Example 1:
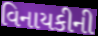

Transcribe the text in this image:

વિનાયકીની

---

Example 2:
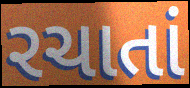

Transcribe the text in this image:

રચાતાં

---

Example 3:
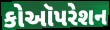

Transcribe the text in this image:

કોઑપરેશન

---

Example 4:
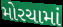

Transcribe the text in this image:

મોરચામાં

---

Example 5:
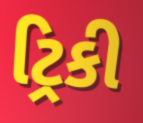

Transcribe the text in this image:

ટ્રિકી